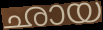
ഛായ